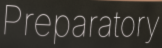
Preparatory